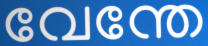
വേന്തേ